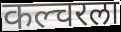
कल्चरला